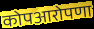
कोपआरोपणा